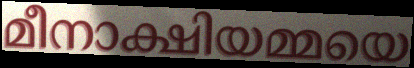
മീനാക്ഷിയമ്മയെ